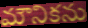
మౌనికను